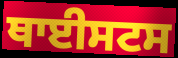
ਥਾਈਸਟਸ